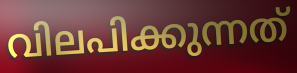
വിലപിക്കുന്നത്